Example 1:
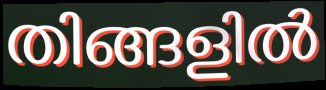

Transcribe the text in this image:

തിങ്ങളിൽ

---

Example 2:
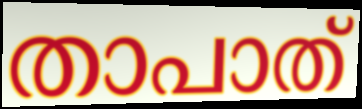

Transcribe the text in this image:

താപാത്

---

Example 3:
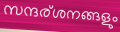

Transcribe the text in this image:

സന്ദര്ശനങ്ങളും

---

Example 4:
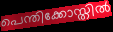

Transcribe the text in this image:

പെന്തിക്കോസ്തിൽ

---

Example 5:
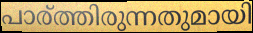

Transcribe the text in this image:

പാര്ത്തിരുന്നതുമായി